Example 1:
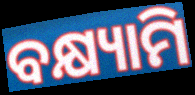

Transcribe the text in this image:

ବକ୍ଷ୍ୟାମି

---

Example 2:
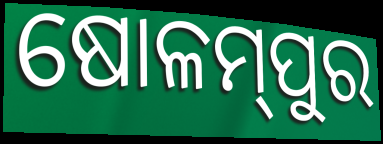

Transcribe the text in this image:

ଷୋଳମ୍‌ପୁର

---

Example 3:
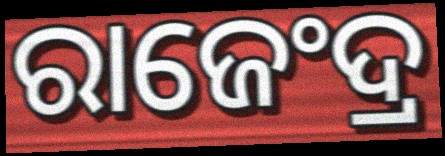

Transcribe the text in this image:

ରାଜେଂଦ୍ର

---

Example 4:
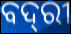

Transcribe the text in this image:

ବଦ୍‌ରୀ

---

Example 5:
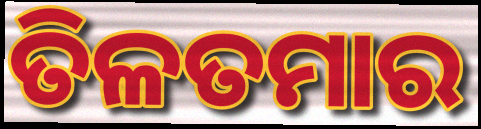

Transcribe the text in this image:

ତିଳତମାର